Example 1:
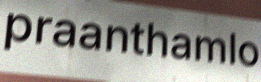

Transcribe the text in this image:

praanthamlo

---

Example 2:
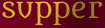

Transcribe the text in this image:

supper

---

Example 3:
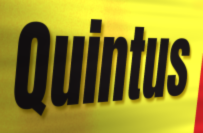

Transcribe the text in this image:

Quintus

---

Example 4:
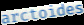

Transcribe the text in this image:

arctoides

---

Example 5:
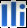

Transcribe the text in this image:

Ili